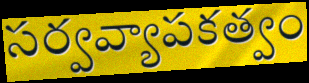
సర్వవ్యాపకత్వం